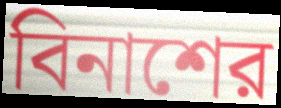
বিনাশের